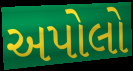
અપોલો